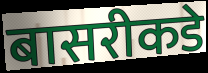
बासरीकडे